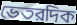
ভেতরদিক